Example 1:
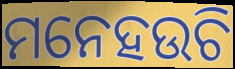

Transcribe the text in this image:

ମନେହଉଚି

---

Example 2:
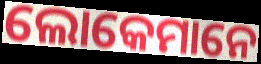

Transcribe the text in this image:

ଲୋକେମାନେ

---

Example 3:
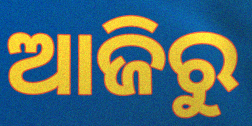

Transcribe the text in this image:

ଆଜିରୁ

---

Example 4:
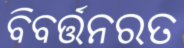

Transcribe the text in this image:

ବିବର୍ତ୍ତନରତ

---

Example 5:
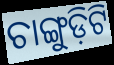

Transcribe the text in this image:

ଚାଙ୍ଗୁଡ଼ିଟି